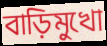
বাড়িমুখো